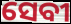
ସେବୀ